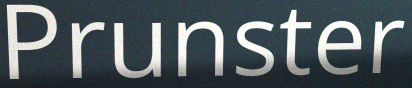
Prunster